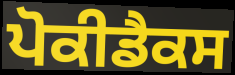
ਪੋਕੀਡੈਕਸ